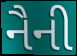
નૈની